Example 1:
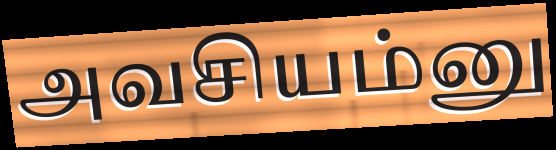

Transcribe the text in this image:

அவசியம்னு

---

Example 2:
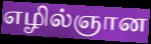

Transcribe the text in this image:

எழில்ஞான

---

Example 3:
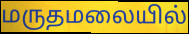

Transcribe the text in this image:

மருதமலையில்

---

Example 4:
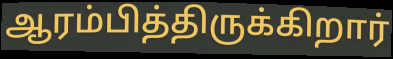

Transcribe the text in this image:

ஆரம்பித்திருக்கிறார்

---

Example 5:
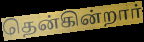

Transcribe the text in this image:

தென்கின்றார்